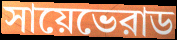
সায়েভেরাড